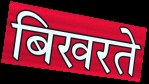
बिखरते